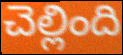
చెల్లింది